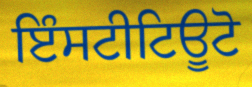
ਇੰਸਟੀਟਿਊਟੋ